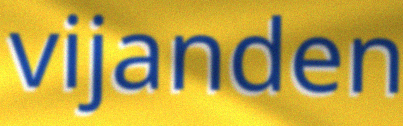
vijanden